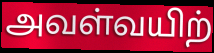
அவள்வயிற்